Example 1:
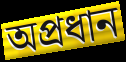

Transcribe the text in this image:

অপ্ৰধান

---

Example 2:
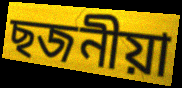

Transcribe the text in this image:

ছজনীয়া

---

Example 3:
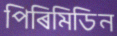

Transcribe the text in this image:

পিৰিমিডিন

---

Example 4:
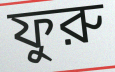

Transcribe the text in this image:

ফুৰু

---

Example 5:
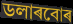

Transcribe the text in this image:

ডলাৰবোৰ